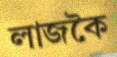
লাজকৈ